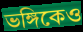
ভঙ্গিকেও